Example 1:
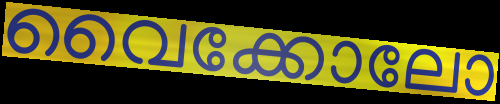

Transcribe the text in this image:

വൈക്കോലോ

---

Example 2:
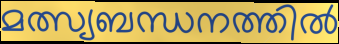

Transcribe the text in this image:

മത്സ്യബന്ധനത്തിൽ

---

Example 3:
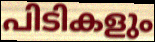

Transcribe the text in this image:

പിടികളും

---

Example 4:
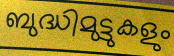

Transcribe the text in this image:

ബുദ്ധിമുട്ടുകളും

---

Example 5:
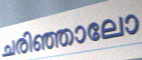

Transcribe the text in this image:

ചരിഞ്ഞാലോ